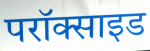
परॉक्साइड